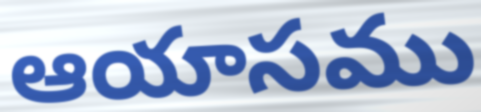
ఆయాసము